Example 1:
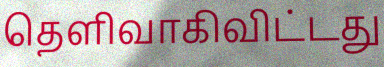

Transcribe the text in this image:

தெளிவாகிவிட்டது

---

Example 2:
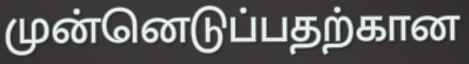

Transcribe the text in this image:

முன்னெடுப்பதற்கான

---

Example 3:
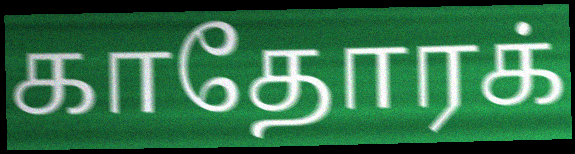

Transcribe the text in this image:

காதோரக்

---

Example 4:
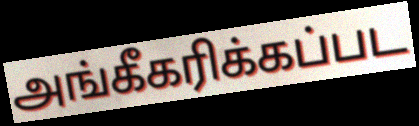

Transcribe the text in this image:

அங்கீகரிக்கப்பட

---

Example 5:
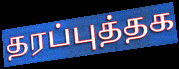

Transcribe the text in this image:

தரப்புத்தக